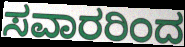
ಸವಾರರಿಂದ